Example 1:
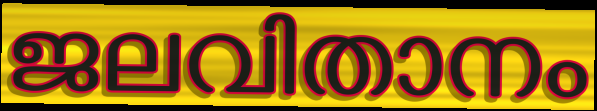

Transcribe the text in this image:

ജലവിതാനം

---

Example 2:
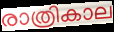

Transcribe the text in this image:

രാത്രികാല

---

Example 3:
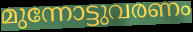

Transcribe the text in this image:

മുന്നോട്ടുവരണം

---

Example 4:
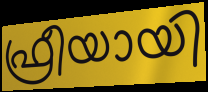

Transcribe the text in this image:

ഫ്രീയായി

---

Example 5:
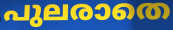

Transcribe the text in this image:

പുലരാതെ